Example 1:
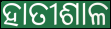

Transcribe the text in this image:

ହାତୀଶାଳ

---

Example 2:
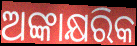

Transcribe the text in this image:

ଅଙ୍କାକ୍ଷରିକ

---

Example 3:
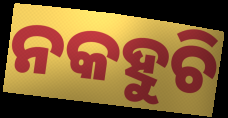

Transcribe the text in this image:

ନକହୁଚି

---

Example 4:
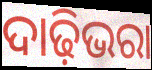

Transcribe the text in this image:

ଦାଢ଼ିଭରା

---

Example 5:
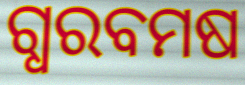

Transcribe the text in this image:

ଗ୍ଧରବମଷ